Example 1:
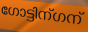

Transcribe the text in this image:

ഗോട്ടിന്ഗന്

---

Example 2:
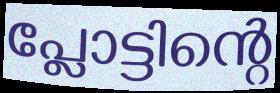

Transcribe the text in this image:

പ്ലോട്ടിന്റെ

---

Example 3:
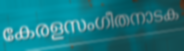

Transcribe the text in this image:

കേരളസംഗീതനാടക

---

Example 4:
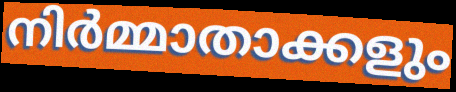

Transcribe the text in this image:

നിർമ്മാതാക്കളും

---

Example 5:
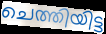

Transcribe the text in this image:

ചെത്തിയിട്ട